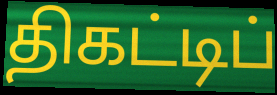
திகட்டிப்